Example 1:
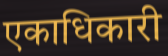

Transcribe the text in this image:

एकाधिकारी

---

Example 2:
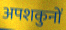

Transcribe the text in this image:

अपशकुनों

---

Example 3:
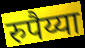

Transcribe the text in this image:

रुपैय्या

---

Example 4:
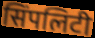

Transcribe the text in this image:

सिंपलिटी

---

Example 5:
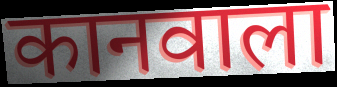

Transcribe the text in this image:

कानवाला